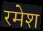
रमेश